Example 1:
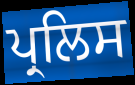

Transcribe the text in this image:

ਪ੍ਰਲਿਸ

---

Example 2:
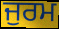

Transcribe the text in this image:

ਜੁਰਮ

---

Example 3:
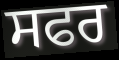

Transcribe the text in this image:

ਸਫਰ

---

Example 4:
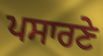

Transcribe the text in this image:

ਪਸਾਰਣੇ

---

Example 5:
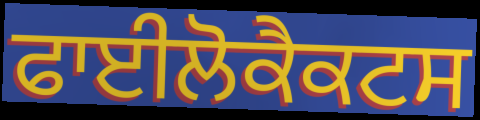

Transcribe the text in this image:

ਫਾਈਲੋਕੈਕਟਸ